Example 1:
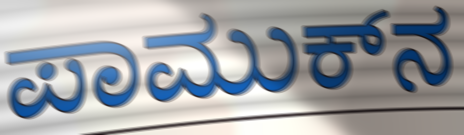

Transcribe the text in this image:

ಪಾಮುಕ್‍ನ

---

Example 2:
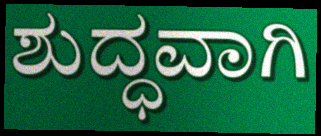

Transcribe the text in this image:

ಶುದ್ಧವಾಗಿ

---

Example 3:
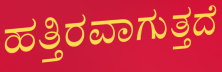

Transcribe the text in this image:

ಹತ್ತಿರವಾಗುತ್ತದೆ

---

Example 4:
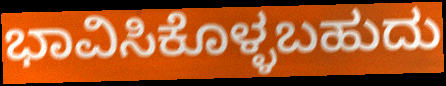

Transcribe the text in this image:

ಭಾವಿಸಿಕೊಳ್ಳಬಹುದು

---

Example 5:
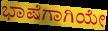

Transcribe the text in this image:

ಭಾಷೆಗಾಗಿಯೇ